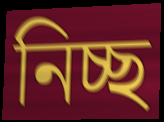
নিচ্ছ